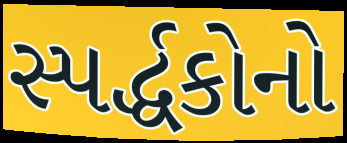
સ્પર્દ્ધકોનો